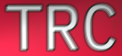
TRC